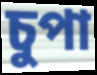
চুপা